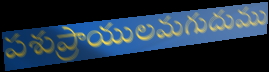
పశుప్రాయులమగుదుము